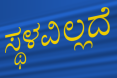
ಸ್ಥಳವಿಲ್ಲದೆ